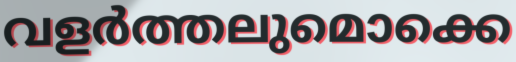
വളർത്തലുമൊക്കെ